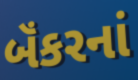
બૅંકરનાં